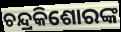
ଚନ୍ଦ୍ରକିଶୋରଙ୍କ